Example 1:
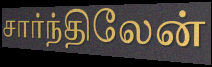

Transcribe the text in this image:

சார்ந்திலேன்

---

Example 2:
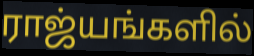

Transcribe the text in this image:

ராஜ்யங்களில்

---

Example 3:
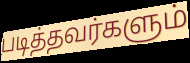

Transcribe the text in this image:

படித்தவர்களும்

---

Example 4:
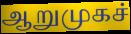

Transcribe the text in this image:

ஆறுமுகச்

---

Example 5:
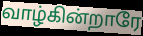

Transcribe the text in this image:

வாழ்கின்றாரே